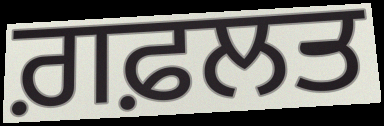
ਗ਼ਫ਼ਲਤ